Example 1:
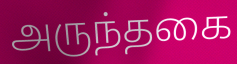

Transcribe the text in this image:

அருந்தகை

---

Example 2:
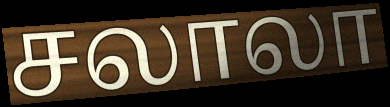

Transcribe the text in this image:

சலாலா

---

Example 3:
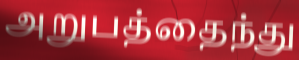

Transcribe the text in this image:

அறுபத்தைந்து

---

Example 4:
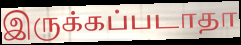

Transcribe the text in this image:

இருக்கப்படாதா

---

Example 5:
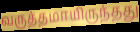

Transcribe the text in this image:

வருத்தமாயிருந்தது